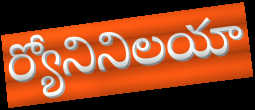
ర్యోనినిలయా